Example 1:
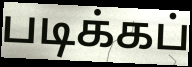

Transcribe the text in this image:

படிக்கப்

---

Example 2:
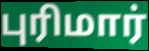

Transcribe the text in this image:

புரிமார்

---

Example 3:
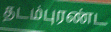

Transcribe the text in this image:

தடம்புரண்ட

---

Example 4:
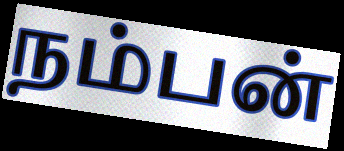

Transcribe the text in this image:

நம்பன்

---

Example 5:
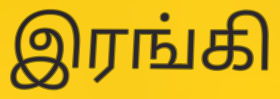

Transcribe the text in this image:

இரங்கி